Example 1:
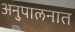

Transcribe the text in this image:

अनुपालनात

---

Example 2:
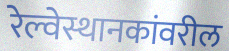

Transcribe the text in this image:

रेल्वेस्थानकांवरील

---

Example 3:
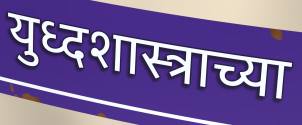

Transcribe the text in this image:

युध्दशास्त्राच्या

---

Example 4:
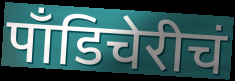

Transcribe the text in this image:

पाँडिचेरीचं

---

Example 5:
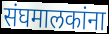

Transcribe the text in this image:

संघमालकांना